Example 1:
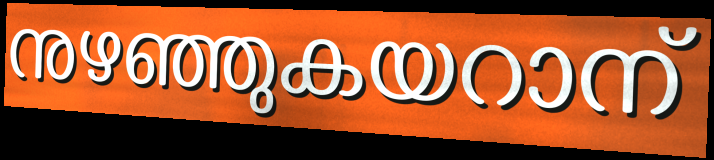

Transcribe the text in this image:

നുഴഞ്ഞുകയറാന്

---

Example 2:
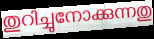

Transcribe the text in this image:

തുറിച്ചുനോക്കുന്നതു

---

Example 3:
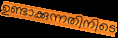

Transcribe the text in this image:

ഉണ്ടാക്കുന്നതിനിടെ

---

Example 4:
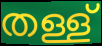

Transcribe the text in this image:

തള്ള്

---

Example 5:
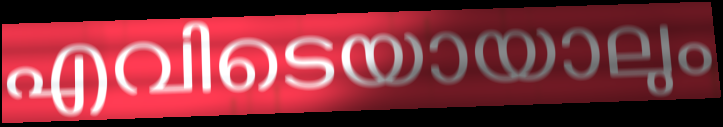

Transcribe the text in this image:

എവിടെയായാലും